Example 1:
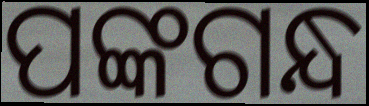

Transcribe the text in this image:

ପଙ୍କଗନ୍ଧ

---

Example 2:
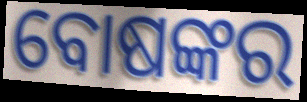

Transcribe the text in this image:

ବୋଷଙ୍କର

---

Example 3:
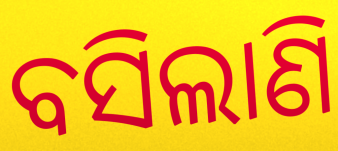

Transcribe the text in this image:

ବସିଲାଣି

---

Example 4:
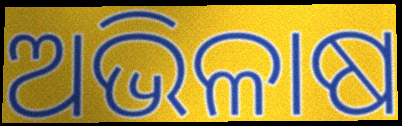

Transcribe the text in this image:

ଅଭିଳାଷ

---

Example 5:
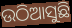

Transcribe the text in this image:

ଉଠିଆସୁଛି